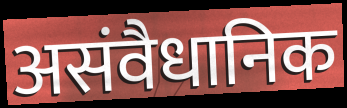
असंवैधानिक